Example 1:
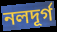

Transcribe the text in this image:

নলদূর্গ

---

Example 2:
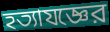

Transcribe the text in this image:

হত্যাযজ্ঞের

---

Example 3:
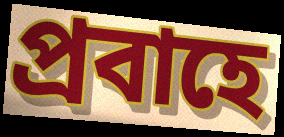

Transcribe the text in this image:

প্রবাহে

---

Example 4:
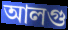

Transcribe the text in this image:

আলগু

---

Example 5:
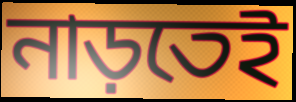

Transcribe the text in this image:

নাড়তেই